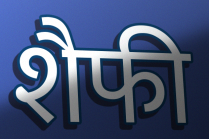
शैफी